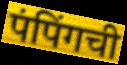
पंपिंगची